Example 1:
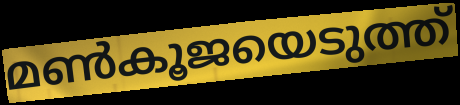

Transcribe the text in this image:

മൺകൂജയെടുത്ത്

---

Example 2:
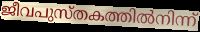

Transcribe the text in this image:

ജീവപുസ്തകത്തിൽനിന്ന്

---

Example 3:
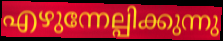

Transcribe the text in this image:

എഴുന്നേല്പിക്കുന്നു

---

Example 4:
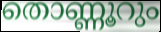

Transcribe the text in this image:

തൊണ്ണൂറും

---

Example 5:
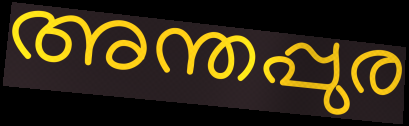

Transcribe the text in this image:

അന്തപ്പുര